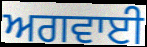
ਅਗਵਾਈ